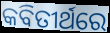
କବିତୀର୍ଥରେ